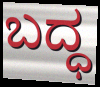
ಬದ್ಧ